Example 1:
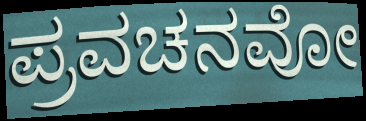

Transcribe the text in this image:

ಪ್ರವಚನವೋ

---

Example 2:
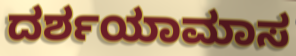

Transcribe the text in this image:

ದರ್ಶಯಾಮಾಸ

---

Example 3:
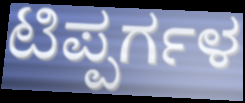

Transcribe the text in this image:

ಟಿಪ್ಪರ್ಗಳ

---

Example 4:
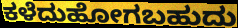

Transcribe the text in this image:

ಕಳೆದುಹೋಗಬಹುದು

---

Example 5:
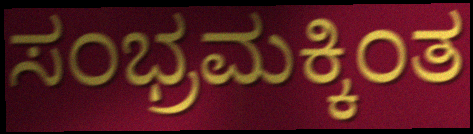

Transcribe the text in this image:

ಸಂಭ್ರಮಕ್ಕಿಂತ